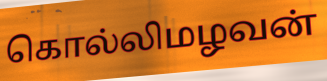
கொல்லிமழவன்